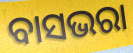
ବାସଭରା